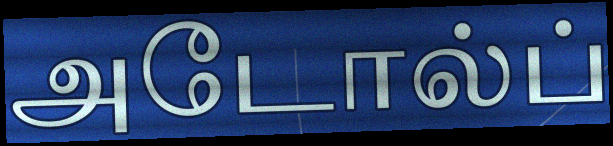
அடோல்ப்